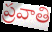
ప్రవాతి